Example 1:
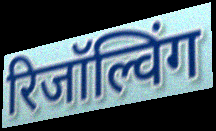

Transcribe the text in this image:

रिजॉल्विंग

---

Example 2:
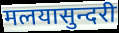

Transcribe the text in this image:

मलयासुन्दरी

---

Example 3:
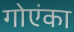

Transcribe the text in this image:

गोएंका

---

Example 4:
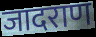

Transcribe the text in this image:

जादराण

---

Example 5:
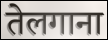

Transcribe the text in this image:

तेलगाना